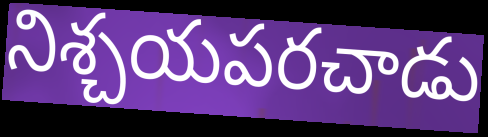
నిశ్చయపరచాడు